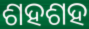
ଶହଶହ